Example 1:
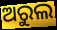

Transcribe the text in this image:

ଅରୁଲ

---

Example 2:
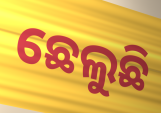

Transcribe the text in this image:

ଛେଲୁଛି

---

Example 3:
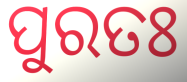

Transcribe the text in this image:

ପୁରତଃ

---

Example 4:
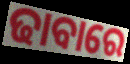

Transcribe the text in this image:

ଢାବାରେ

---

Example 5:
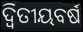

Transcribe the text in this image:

ଦ୍ୱିତୀୟବର୍ଷ